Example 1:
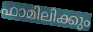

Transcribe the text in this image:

ഫാമിലിക്കും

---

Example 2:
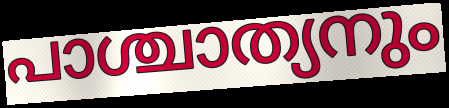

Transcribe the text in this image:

പാശ്ചാത്യനും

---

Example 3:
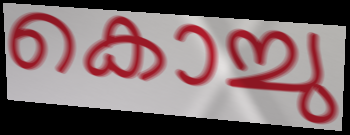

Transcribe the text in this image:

കൊച്ചു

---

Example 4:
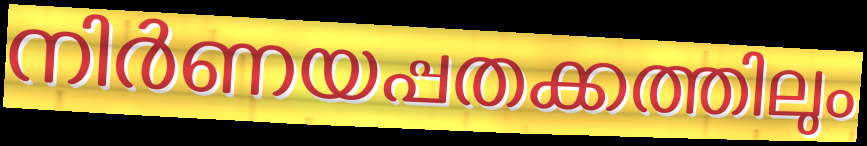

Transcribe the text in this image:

നിർണയപ്പതക്കത്തിലും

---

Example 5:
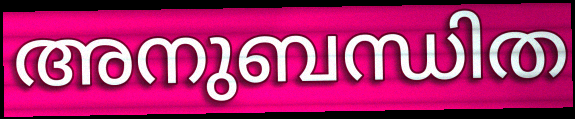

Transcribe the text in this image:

അനുബന്ധിത